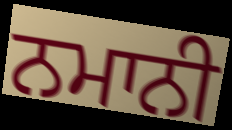
ਨਮਾਨੀ